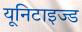
यूनिटाइज्ड